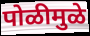
पोळीमुळे